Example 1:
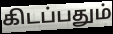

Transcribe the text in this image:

கிடப்பதும்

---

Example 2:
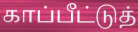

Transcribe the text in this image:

காப்பீட்டுத்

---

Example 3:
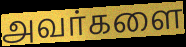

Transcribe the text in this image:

அவர்களை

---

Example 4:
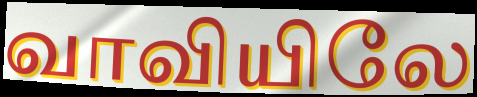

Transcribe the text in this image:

வாவியிலே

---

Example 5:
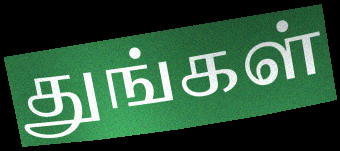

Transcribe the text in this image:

துங்கள்